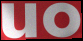
uo